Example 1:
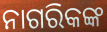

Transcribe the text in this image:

ନାଗରିକଙ୍କ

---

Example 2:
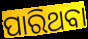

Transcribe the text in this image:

ପାରିଥବା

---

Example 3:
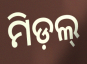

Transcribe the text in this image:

ମିଡ଼ଲ୍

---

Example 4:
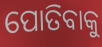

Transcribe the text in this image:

ପୋତିବାକୁ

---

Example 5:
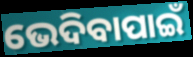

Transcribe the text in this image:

ଭେଦିବାପାଇଁ